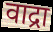
वाद्रा